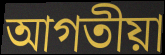
আগতীয়া